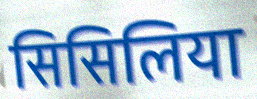
सिसिलिया